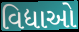
વિદ્યાઓ